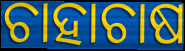
ଚାହାଚାଷ